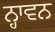
ਨ੍ਹਾਵਨ